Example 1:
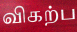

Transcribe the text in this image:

விகற்ப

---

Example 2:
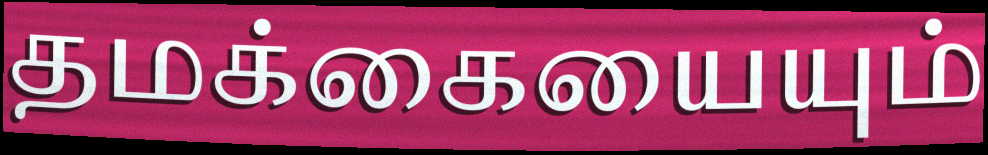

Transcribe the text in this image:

தமக்கையையும்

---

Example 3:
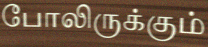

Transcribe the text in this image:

போலிருக்கும்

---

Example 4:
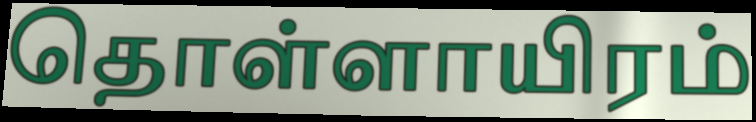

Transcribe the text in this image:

தொள்ளாயிரம்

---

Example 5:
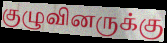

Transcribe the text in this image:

குழுவினருக்கு